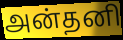
அன்தனி